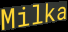
Milka